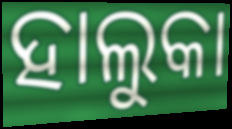
ହାଲୁକା